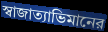
স্বাজাত্যাভিমানের